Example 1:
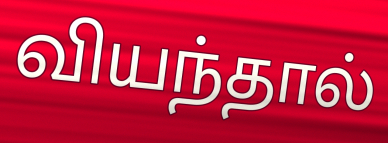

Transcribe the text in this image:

வியந்தால்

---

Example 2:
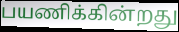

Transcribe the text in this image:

பயணிக்கின்றது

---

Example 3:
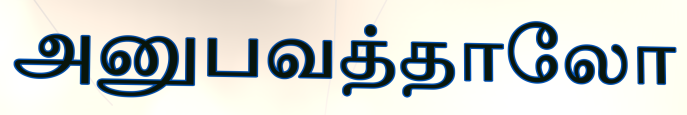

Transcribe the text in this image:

அனுபவத்தாலோ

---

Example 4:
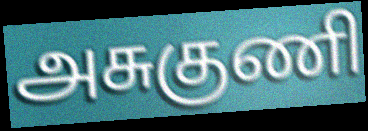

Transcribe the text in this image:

அசுகுணி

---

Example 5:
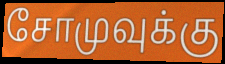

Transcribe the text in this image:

சோமுவுக்கு